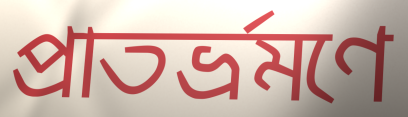
প্রাতর্ভ্রমণে